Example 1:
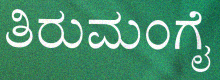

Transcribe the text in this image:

ತಿರುಮಂಗೈ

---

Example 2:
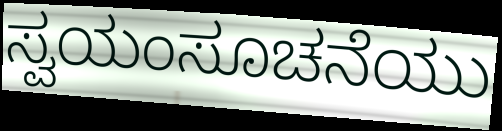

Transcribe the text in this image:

ಸ್ವಯಂಸೂಚನೆಯು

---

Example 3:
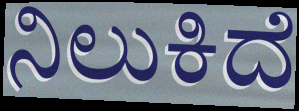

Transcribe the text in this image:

ನಿಲುಕಿದೆ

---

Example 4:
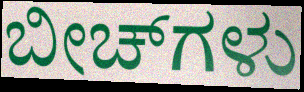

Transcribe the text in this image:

ಬೀಚ್‌ಗಳು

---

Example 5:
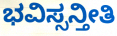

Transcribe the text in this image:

ಭವಿಸ್ಸನ್ತೀತಿ